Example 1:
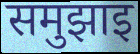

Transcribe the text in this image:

समुझाइ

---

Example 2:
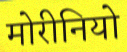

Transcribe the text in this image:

मोरीनियो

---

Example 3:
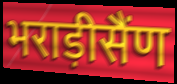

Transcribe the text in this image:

भराड़ीसैंण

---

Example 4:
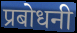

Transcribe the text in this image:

प्रबोधनी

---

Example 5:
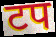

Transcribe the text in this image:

टप